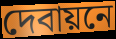
দেবায়নে